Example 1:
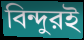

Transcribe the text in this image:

বিন্দুরই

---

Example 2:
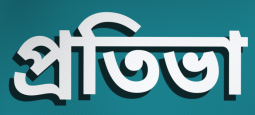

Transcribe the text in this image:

প্রতিভা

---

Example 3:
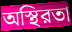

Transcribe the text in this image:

অস্থিরতা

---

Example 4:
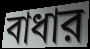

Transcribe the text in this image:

বাধার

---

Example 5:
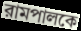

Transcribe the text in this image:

রামপালকে